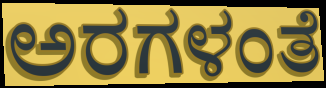
ಅರಗಳಂತೆ